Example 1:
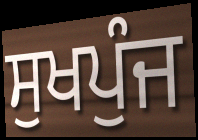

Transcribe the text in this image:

ਸੁਖਪੁੰਜ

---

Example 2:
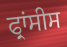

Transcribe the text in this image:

ਫ੍ਰਾਂਸੀਸ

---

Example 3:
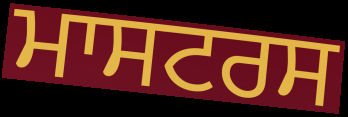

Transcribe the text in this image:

ਮਾਸਟਰਸ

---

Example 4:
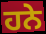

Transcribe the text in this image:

ਹਨੇ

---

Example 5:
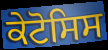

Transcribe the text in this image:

ਕੇਟੋਸਿਸ